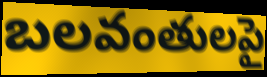
బలవంతులపై